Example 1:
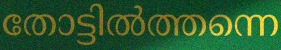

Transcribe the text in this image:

തോട്ടിൽത്തന്നെ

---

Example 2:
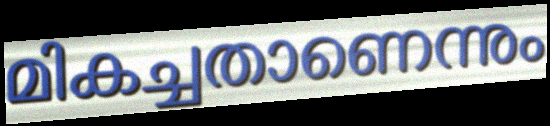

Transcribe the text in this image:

മികച്ചതാണെന്നും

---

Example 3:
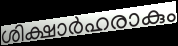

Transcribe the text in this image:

ശിക്ഷാർഹരാകും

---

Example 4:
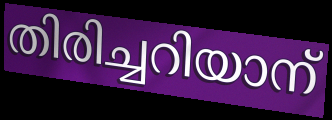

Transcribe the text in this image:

തിരിച്ചറിയാന്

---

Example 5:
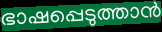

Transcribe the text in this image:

ഭാഷപ്പെടുത്താൻ